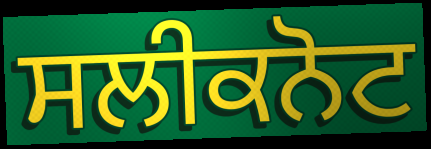
ਸਲੀਕਨੋਟ